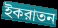
ইকরাতন